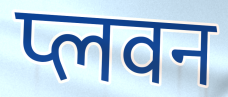
प्लवन